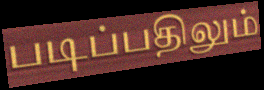
படிப்பதிலும்